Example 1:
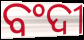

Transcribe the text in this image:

ବଂଦୀ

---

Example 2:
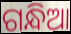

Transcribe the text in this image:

ଗନ୍ଧିଆ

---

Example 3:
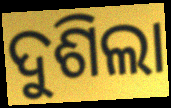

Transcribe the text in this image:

ଦୁଶିଲା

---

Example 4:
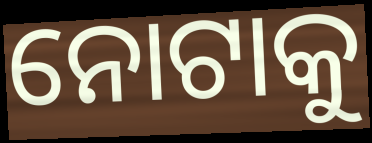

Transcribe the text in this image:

ନୋଟାକୁ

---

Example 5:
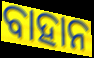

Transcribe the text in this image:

ବାହାନ